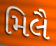
મિલૈ